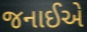
જનાઈએ